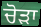
ਚੋੜਾ